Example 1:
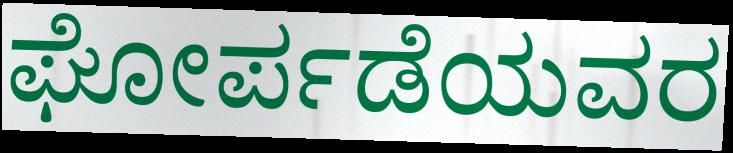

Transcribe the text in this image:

ಘೋರ್ಪಡೆಯವರ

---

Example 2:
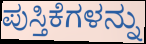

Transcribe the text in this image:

ಪುಸ್ತಿಕೆಗಳನ್ನು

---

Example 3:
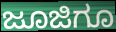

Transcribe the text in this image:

ಜೂಜಿಗೂ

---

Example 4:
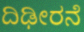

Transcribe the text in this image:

ದಿಢೀರನೆ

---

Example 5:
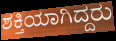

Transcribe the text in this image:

ಶಕ್ತಿಯಾಗಿದ್ದರು